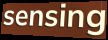
sensing